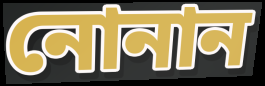
নোনান